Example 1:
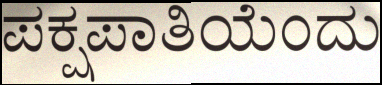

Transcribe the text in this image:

ಪಕ್ಷಪಾತಿಯೆಂದು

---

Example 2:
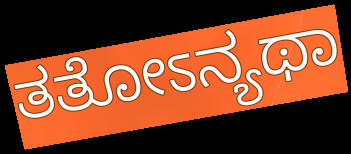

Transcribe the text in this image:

ತತೋಽನ್ಯಥಾ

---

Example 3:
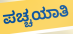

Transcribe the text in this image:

ಪಚ್ಚಯಾತಿ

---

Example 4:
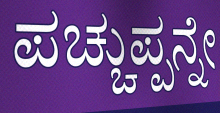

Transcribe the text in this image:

ಪಚ್ಚುಪ್ಪನ್ನೇ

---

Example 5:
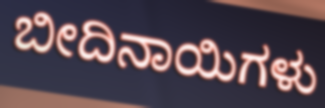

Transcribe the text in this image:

ಬೀದಿನಾಯಿಗಳು